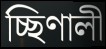
চ্ছিণালী